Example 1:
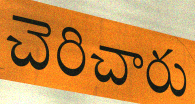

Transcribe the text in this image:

చెరిచారు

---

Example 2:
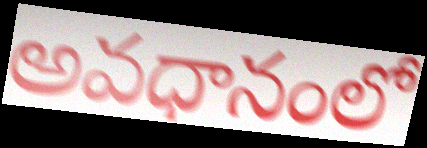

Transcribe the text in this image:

అవధానంలో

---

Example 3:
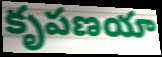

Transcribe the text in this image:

కృపణయా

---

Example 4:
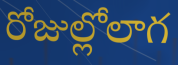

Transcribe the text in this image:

రోజుల్లోలాగ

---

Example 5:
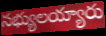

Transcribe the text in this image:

సభ్యులయ్యారు